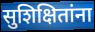
सुशिक्षितांना